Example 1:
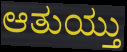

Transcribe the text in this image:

ಆತುಯ್ತು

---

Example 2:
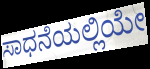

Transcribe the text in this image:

ಸಾಧನೆಯಲ್ಲಿಯೇ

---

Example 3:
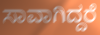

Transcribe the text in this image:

ಸಾವಾಗಿದ್ದರೆ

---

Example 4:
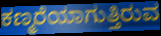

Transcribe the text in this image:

ಕಣ್ಮರೆಯಾಗುತ್ತಿರುವ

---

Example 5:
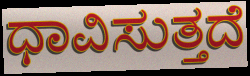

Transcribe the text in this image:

ಧಾವಿಸುತ್ತದೆ